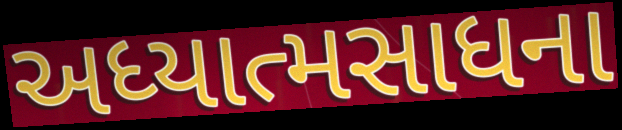
અધ્યાત્મસાધના